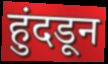
हुंदडून